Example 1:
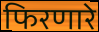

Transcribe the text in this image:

फिरणारे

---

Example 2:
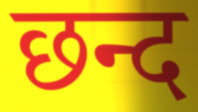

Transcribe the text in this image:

छन्द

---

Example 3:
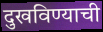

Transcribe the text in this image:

दुखविण्याची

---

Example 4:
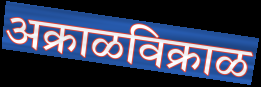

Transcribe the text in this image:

अक्राळविक्राळ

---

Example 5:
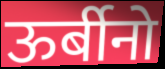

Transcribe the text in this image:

ऊर्बीनो